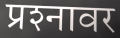
प्रश्नावर